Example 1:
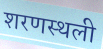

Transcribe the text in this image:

शरणस्थली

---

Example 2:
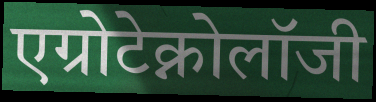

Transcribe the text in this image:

एग्रोटेक्नोलॉजी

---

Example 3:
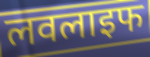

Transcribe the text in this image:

लवलाइफ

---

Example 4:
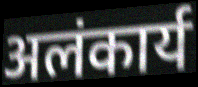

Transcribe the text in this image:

अलंकार्य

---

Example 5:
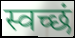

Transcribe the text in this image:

स्वच्छं